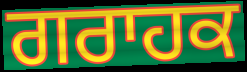
ਗਰਾਹਕ